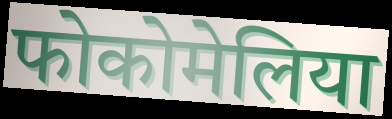
फोकोमेलिया